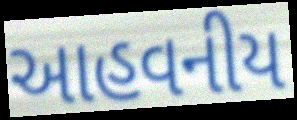
આહવનીય